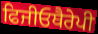
ਫਿਜੀਓਥੈਰੇਪੀ